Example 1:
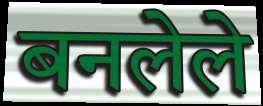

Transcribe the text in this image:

बनलेले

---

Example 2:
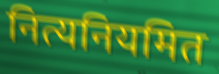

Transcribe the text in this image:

नित्यनियमित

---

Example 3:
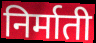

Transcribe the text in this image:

निर्माती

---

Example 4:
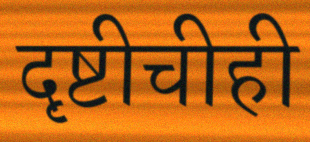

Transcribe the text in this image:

दृष्टीचीही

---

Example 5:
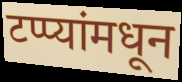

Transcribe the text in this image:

टप्प्यांमधून